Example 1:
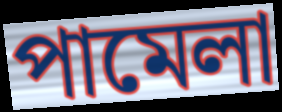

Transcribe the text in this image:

পামেলা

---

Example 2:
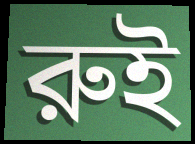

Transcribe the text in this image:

রুই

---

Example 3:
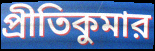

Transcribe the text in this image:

প্রীতিকুমার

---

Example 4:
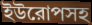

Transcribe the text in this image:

ইউরোপসহ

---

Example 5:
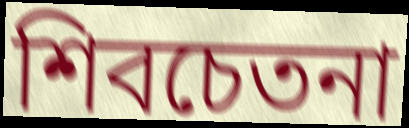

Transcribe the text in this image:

শিবচেতনা